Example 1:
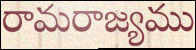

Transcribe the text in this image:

రామరాజ్యము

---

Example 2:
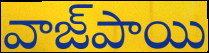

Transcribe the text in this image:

వాజ్‌పాయి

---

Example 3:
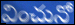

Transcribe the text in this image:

వించునో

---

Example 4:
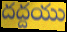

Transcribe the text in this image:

దద్దయు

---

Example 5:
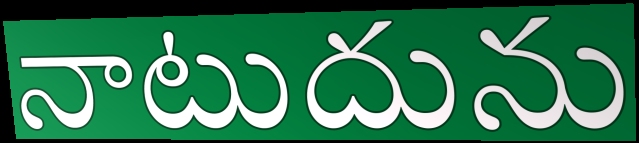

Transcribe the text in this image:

నాటుదును